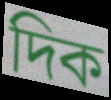
দিক